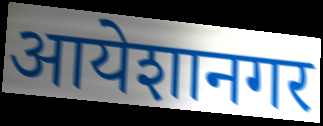
आयेशानगर